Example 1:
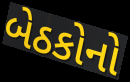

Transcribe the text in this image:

બેઠકોનો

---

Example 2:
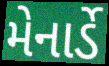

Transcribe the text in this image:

મેનાર્ડે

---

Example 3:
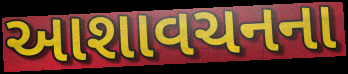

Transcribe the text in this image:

આશાવચનના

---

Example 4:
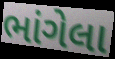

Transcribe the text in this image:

ભાંગેલા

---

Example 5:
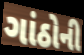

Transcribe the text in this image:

ગાંઠોની